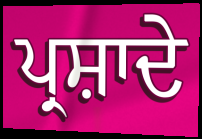
ਪ੍ਰਸ਼ਾਦੇ